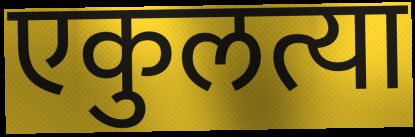
एकुलत्या